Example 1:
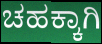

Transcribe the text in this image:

ಚಹಕ್ಕಾಗಿ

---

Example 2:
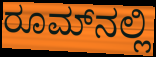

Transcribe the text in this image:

ರೂಮ್‌ನಲ್ಲಿ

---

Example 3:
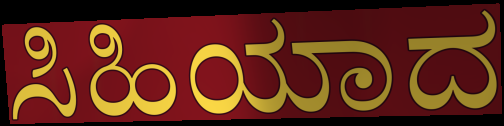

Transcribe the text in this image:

ಸಿಹಿಯಾದ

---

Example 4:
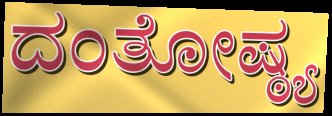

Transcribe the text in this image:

ದಂತೋಷ್ಠ್ಯ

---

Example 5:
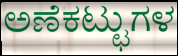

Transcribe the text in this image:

ಅಣೆಕಟ್ಟುಗಳ